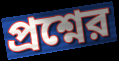
প্রশ্নের